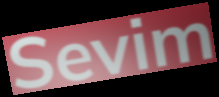
Sevim